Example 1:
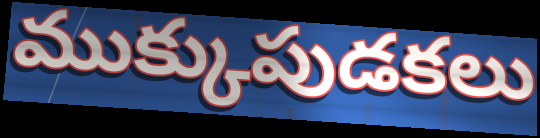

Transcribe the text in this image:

ముక్కుపుడకలు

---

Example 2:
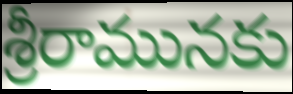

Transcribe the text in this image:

శ్రీరామునకు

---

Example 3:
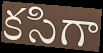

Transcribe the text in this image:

కసిగా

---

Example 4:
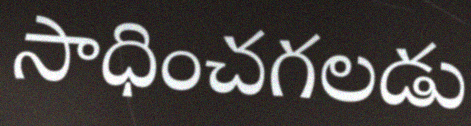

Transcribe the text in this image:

సాధించగలడు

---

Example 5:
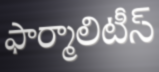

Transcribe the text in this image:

ఫార్మాలిటీస్